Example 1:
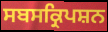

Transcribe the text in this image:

ਸਬਸਕ੍ਰਿਪਸ਼ਨ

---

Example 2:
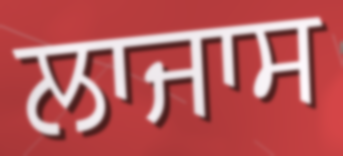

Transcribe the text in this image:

ਲਾਜਾਸ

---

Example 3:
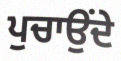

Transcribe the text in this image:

ਪੁਚਾਉਂਦੇ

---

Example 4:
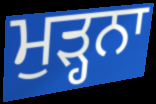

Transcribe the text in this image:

ਮੁੜ੍ਹਨਾ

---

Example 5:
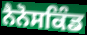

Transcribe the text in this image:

ਨੈਨੋਸਕਿੰਡ